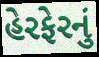
હેરફેરનું